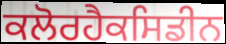
ਕਲੋਰਹੈਕਸਿਡੀਨ